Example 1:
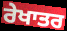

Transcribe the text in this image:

ਰੇਖਾਤਰ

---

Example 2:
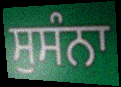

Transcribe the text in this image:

ਸੁਸੰਨਾ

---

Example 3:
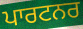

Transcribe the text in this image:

ਪਾਰਟਨਰ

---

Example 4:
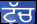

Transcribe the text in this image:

ਟੱਚ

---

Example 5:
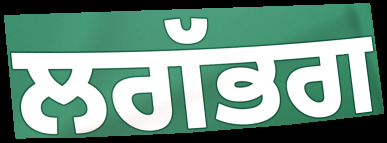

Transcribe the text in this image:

ਲਗੱਭਗ